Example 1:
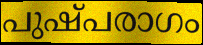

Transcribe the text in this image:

പുഷ്പരാഗം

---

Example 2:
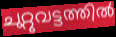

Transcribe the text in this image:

ചുറ്റുവട്ടത്തിൽ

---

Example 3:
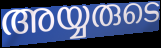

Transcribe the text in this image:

അയ്യരുടെ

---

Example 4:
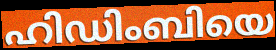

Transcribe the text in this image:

ഹിഡിംബിയെ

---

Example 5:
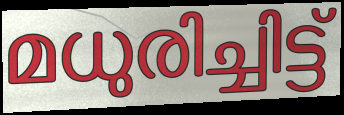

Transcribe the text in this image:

മധുരിച്ചിട്ട്